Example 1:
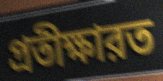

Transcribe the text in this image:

প্রতীক্ষারত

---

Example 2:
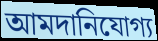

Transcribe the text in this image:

আমদানিযোগ্য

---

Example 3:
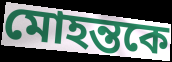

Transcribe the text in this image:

মোহন্তকে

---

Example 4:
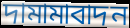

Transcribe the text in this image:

দামামাবাদন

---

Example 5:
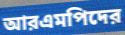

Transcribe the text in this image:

আরএমপিদের